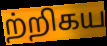
ற்றிகய